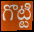
గొట్టి